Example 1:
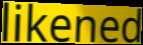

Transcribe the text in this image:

likened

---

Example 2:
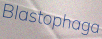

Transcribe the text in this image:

Blastophaga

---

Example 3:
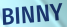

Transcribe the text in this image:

BINNY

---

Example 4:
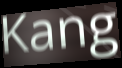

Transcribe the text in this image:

Kang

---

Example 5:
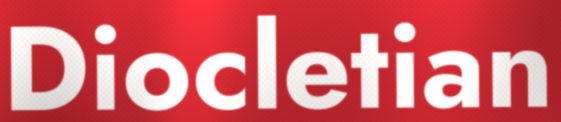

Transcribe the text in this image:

Diocletian